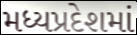
મધ્યપ્રદેશમાં